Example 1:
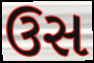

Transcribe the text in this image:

ઉસ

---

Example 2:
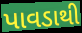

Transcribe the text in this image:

પાવડાથી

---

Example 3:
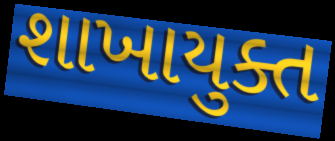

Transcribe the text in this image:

શાખાયુક્ત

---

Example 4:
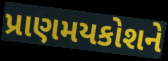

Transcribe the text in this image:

પ્રાણમયકોશને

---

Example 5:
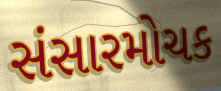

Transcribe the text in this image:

સંસારમોચક